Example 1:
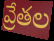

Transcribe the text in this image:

వ్రేతల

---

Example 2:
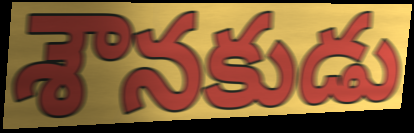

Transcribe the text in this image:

శౌనకుడు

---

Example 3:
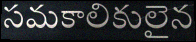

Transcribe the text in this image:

సమకాలికులైన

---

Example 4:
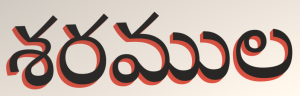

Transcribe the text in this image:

శరముల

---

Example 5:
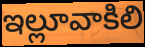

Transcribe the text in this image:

ఇల్లూవాకిలి